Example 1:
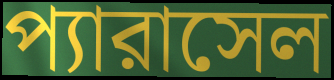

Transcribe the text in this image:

প্যারাসেল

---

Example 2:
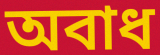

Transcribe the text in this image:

অবাধ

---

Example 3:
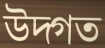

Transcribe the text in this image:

উদ্গত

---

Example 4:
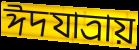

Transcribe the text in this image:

ঈদযাত্রায়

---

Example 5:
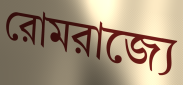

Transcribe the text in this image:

রোমরাজ্যে